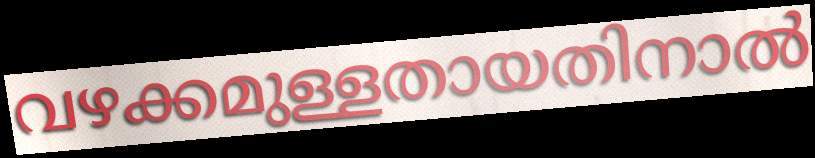
വഴക്കമുള്ളതായതിനാൽ